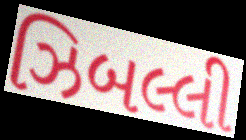
ઝિબલ્લી